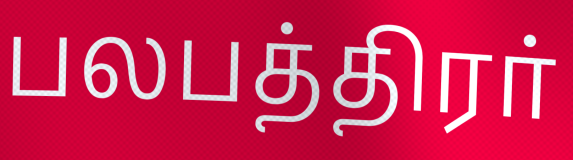
பலபத்திரர்